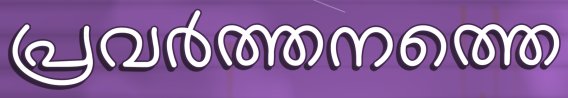
പ്രവർത്തനത്തെ